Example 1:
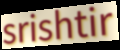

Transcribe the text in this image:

srishtir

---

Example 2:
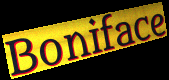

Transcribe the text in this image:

Boniface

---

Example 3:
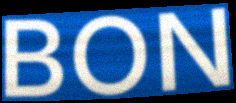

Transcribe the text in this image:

BON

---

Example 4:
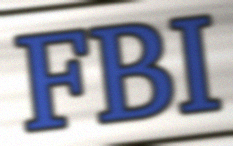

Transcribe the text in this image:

FBI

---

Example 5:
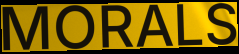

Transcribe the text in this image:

MORALS